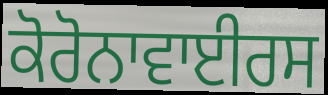
ਕੋਰੋਨਾਵਾਈਰਸ